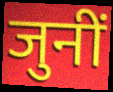
जुनीं